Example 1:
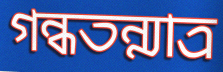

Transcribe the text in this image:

গন্ধতন্মাত্র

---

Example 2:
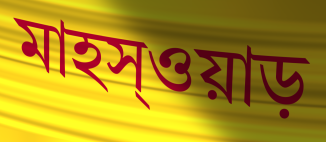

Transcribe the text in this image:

মাহস্ওয়াড়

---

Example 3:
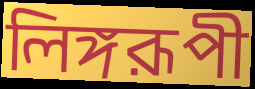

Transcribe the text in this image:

লিঙ্গরূপী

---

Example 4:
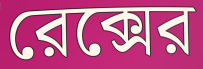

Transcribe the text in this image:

রেক্সের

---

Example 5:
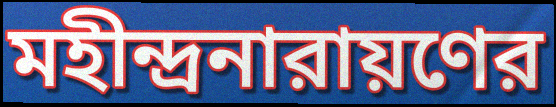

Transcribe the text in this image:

মহীন্দ্রনারায়ণের